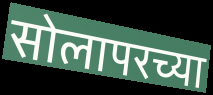
सोलापरच्या